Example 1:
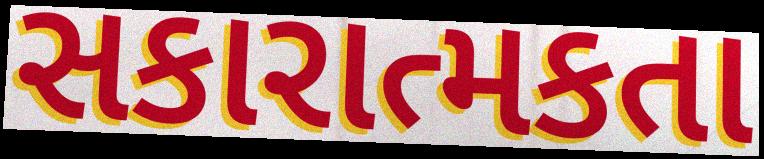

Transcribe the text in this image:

સકારાત્મકતા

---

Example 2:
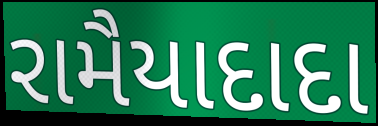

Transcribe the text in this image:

રામૈયાદાદા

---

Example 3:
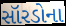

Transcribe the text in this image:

સૉરડોના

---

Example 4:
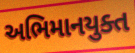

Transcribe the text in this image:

અભિમાનયુક્ત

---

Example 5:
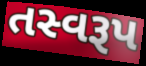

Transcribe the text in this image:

તસ્વરૂપ